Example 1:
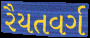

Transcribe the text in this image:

રૈયતવર્ગ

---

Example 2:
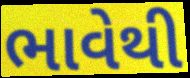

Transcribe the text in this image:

ભાવેથી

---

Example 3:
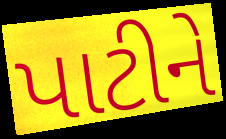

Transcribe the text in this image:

પાટીને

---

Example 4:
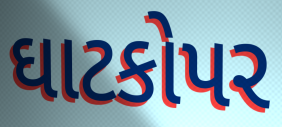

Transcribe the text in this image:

ઘાટકોપર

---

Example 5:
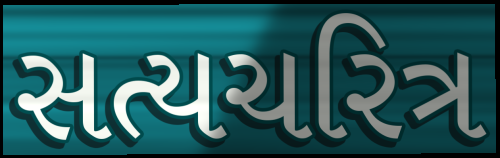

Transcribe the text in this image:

સત્યચરિત્ર